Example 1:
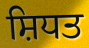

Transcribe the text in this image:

ਸ਼ਿਧਤ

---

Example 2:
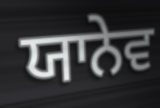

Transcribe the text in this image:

ਯਾਨੇਵ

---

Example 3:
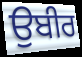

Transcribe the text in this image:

ਉਬੀਰ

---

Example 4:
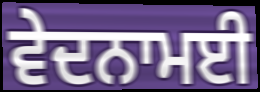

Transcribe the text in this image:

ਵੇਦਨਾਮਈ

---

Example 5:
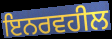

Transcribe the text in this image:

ਇਨਰਵਹੀਲ